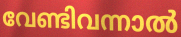
വേണ്ടിവന്നാൽ